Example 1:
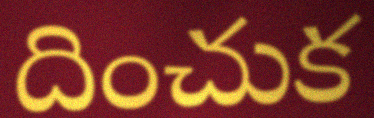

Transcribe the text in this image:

దించుక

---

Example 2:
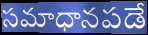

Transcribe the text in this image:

సమాధానపడే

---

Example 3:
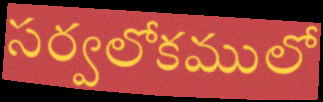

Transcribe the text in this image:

సర్వలోకములో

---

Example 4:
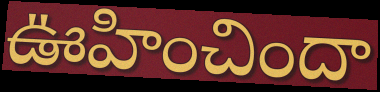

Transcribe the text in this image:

ఊహించిందా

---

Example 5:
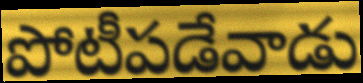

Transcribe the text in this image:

పోటీపడేవాడు